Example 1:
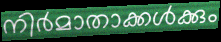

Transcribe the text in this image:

നിർമാതാക്കൾക്കും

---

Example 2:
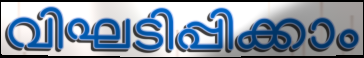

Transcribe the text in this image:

വിഘടിപ്പിക്കാം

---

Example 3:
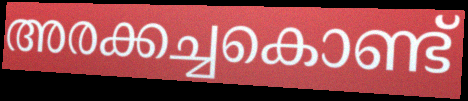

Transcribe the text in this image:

അരക്കച്ചകൊണ്ട്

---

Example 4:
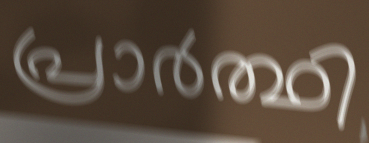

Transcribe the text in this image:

പ്രാർത്ഥി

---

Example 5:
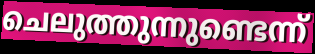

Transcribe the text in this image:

ചെലുത്തുന്നുണ്ടെന്ന്